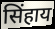
सिंहाय